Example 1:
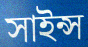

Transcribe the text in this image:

সাইন্স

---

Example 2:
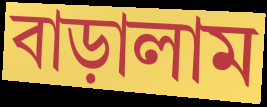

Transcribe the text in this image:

বাড়ালাম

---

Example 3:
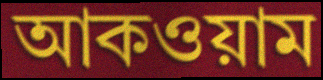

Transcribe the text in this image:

আকওয়াম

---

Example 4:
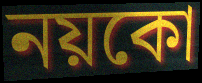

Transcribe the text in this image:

নয়কো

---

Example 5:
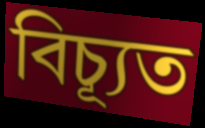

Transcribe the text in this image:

বিচ্যূত